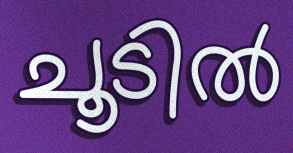
ചൂടിൽ